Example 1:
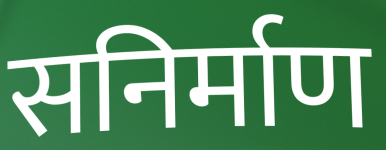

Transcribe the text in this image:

सनिर्माण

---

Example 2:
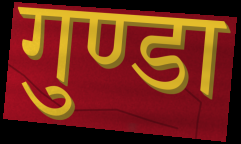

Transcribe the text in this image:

गुण्डा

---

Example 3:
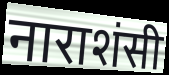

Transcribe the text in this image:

नाराशंसी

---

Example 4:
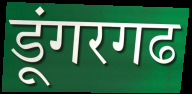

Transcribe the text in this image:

डूंगरगढ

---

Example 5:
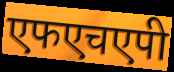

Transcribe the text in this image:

एफएचएपी